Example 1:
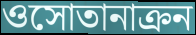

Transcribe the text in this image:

ওসোতানাক্রন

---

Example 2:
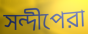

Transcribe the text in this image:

সন্দীপেরা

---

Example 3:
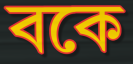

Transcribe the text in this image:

বকে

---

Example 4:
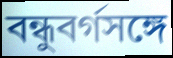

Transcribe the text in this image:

বন্ধুবর্গসঙ্গে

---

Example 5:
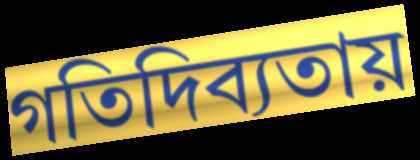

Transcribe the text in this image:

গতিদিব্যতায়